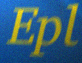
Epl